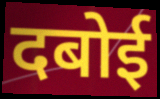
दबोई